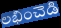
లభించెడి